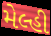
મેલ્હી